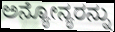
ಅನ್ಯೋನ್ಯರನ್ನು